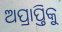
ଅପ୍ରାପ୍ତିକୁ